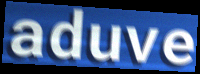
aduve